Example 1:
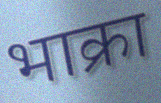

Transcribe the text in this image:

भाक्रा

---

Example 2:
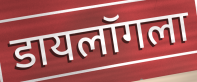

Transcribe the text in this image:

डायलॉगला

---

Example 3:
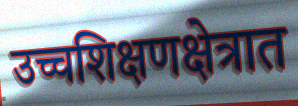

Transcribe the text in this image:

उच्चशिक्षणक्षेत्रात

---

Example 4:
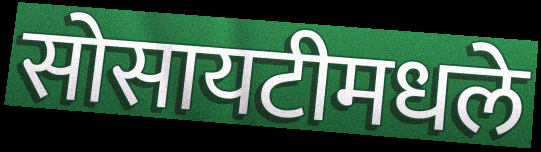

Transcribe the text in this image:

सोसायटीमधले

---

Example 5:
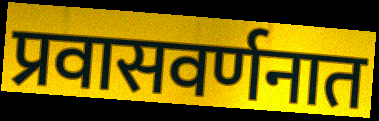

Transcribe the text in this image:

प्रवासवर्णनात